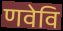
णवेवि